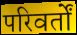
परिवर्तों